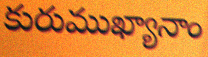
కురుముఖ్యానాం